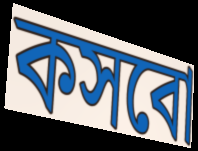
কসবো